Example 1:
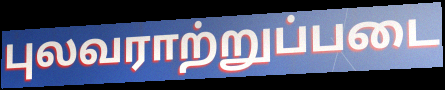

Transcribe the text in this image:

புலவராற்றுப்படை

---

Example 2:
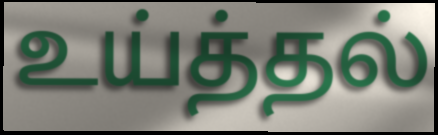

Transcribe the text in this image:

உய்த்தல்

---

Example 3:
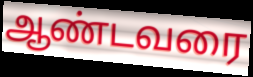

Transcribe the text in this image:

ஆண்டவரை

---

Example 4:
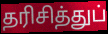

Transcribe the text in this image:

தரிசித்துப்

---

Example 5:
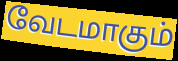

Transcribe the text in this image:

வேடமாகும்